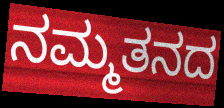
ನಮ್ಮತನದ